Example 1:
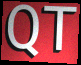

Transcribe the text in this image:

QT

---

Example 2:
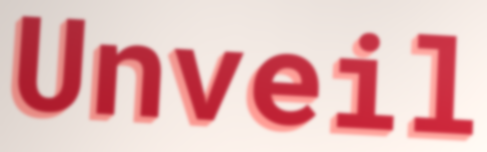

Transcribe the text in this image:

Unveil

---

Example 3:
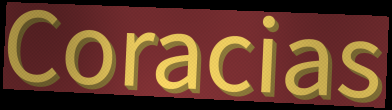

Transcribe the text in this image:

Coracias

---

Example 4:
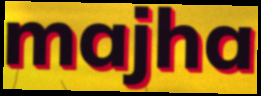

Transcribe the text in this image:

majha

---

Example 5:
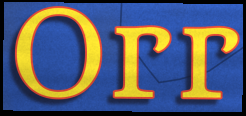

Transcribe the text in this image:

Orr